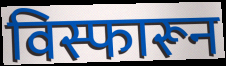
विस्फारून